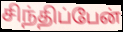
சிந்திப்பேன்